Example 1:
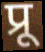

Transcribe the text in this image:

प्रू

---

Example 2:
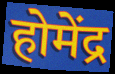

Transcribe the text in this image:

होमेंद्र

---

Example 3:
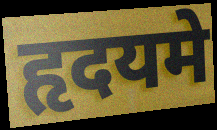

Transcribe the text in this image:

हृदयमे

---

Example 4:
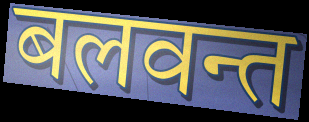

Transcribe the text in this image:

बलवन्त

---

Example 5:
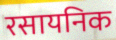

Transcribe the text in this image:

रसायनिक